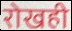
रोखही